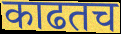
काढतच